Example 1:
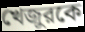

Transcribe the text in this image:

খেজুরকে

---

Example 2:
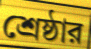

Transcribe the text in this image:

শ্রেষ্ঠার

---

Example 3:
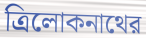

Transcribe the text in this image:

ত্রিলোকনাথের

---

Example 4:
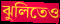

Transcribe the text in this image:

ঝুলিতেও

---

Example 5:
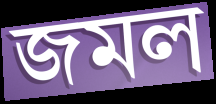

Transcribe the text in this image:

জমল